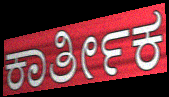
ಕಾರ್ತೀಕ